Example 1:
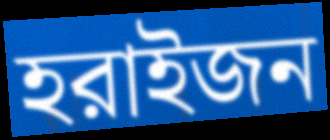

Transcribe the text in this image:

হরাইজন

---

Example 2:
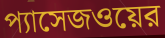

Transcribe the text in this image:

প্যাসেজওয়ের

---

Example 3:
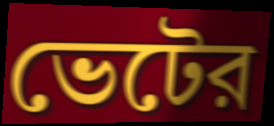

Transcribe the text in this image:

ভেটের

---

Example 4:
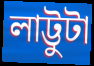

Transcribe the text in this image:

লাট্টুটা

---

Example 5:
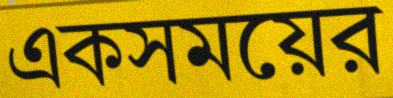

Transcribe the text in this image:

একসময়ের